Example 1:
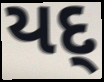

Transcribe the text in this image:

યદ્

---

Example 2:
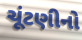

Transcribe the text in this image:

ચૂંટણીનો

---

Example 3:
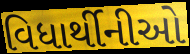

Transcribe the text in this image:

વિધાર્થીનીઓ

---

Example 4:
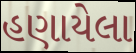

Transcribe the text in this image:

હણાયેલા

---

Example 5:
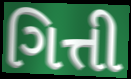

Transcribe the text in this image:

ગિત્તી